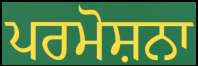
ਪਰਮੋਸ਼ਨਾ